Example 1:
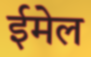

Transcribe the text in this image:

ईमेल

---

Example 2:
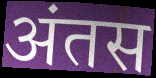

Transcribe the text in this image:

अंतस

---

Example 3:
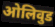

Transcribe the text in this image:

ओलिवुड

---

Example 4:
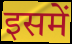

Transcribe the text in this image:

इसमें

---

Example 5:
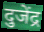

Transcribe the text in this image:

दुजेंद्र